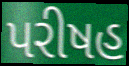
પરીષહ